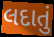
લદાતું